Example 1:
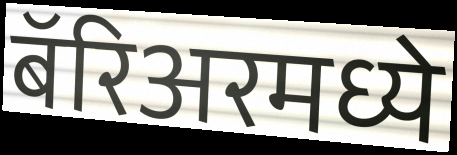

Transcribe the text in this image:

बॅरिअरमध्ये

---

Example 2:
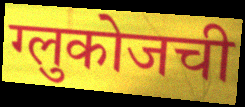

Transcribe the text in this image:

ग्लुकोजची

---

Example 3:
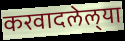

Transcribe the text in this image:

करवादलेल्या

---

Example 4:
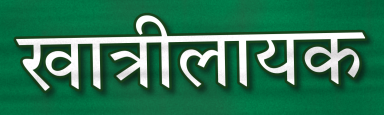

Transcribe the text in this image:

खात्रीलायक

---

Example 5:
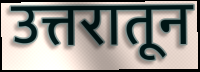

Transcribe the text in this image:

उत्तरातून